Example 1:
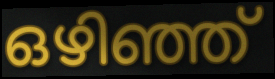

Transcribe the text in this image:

ഒഴിഞ്ഞ്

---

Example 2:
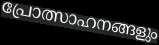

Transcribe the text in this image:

പ്രോത്സാഹനങ്ങളും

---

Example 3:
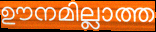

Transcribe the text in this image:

ഊനമില്ലാത്ത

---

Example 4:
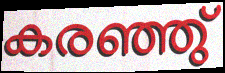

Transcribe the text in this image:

കരഞ്ഞു്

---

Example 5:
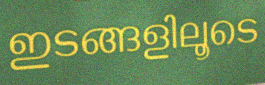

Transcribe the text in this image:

ഇടങ്ങളിലൂടെ